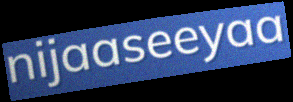
nijaaseeyaa